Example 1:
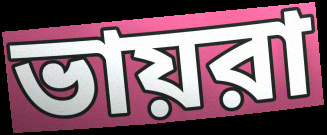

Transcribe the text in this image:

ভায়রা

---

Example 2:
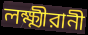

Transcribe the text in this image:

লক্ষ্মীরানী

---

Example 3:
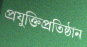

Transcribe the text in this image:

প্রযুক্তিপ্রতিষ্ঠান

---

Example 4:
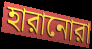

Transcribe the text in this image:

হারানোরা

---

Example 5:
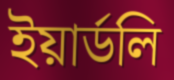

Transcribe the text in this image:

ইয়ার্ডলি